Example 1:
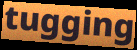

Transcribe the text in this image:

tugging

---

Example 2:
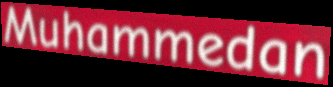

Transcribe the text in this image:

Muhammedan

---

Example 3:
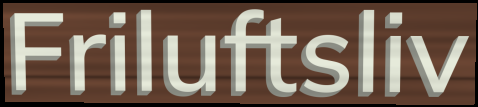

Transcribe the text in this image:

Friluftsliv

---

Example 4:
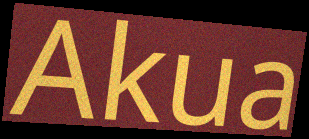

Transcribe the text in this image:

Akua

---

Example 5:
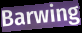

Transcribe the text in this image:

Barwing